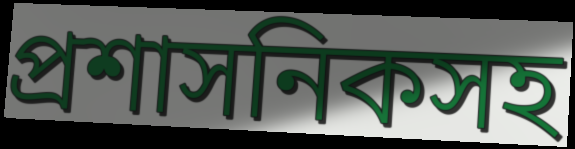
প্রশাসনিকসহ